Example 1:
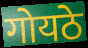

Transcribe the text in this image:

गोयठे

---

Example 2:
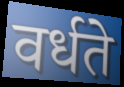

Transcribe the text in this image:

वर्धते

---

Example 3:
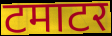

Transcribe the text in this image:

टमाटर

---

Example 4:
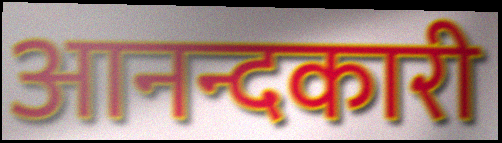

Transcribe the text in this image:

आनन्दकारी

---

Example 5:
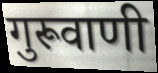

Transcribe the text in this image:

गुरूवाणी